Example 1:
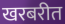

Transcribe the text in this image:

खरबरीत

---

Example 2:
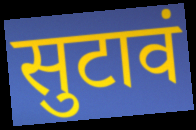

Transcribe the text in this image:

सुटावं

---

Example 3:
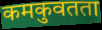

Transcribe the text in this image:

कमकुवतता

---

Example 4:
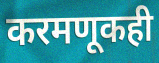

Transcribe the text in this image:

करमणूकही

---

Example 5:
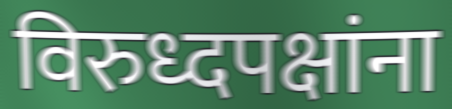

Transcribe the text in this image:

विरुध्दपक्षांना